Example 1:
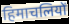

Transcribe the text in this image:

हिमाचलियों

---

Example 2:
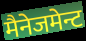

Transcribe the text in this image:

मैनेजमेन्ट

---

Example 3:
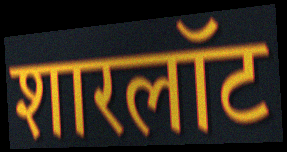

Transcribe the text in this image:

शारलॉट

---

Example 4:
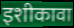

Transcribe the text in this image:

इशीकावा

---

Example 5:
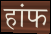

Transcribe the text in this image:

हांफ